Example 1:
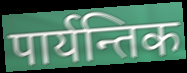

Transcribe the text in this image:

पार्यन्तिक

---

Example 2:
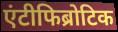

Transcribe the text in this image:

एंटीफिब्रोटिक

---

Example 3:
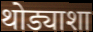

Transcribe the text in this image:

थोड्याशा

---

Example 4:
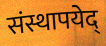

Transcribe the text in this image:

संस्थापयेद्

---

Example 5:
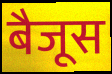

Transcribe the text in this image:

बैजूस